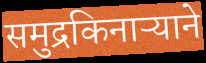
समुद्रकिनाऱ्याने